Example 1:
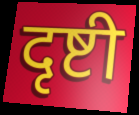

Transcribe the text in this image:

दृष्टी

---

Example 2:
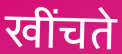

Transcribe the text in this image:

खींचते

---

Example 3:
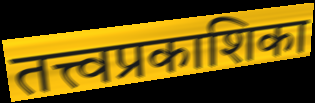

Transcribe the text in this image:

तत्त्वप्रकाशिका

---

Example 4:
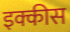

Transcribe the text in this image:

इक्‍कीस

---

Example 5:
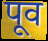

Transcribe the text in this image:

पूव